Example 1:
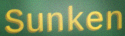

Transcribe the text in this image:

Sunken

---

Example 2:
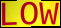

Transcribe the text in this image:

LOW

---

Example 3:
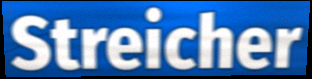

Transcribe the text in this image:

Streicher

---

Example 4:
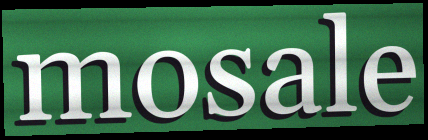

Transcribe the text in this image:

mosale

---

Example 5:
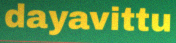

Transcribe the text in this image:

dayavittu